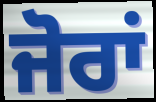
ਜੋਰਾਂ